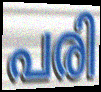
പരി